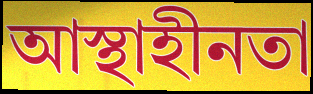
আস্থাহীনতা